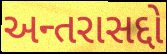
અન્તરાસદ્દો